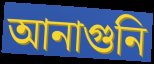
আনাগুনি